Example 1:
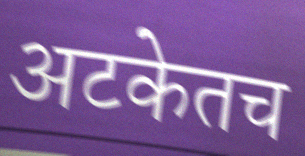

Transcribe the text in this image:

अटकेतच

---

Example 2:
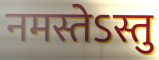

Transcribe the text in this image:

नमस्तेऽस्तु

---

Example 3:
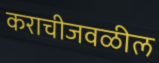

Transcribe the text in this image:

कराचीजवळील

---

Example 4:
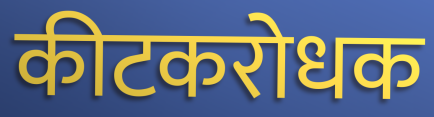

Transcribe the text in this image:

कीटकरोधक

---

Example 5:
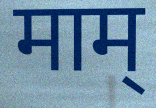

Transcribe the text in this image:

माम्